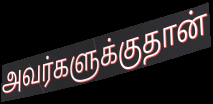
அவர்களுக்குதான்